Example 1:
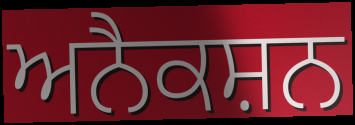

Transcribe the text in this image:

ਅਨੈਕਸ਼ਨ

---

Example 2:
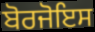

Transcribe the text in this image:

ਬੋਰਜੋਇਸ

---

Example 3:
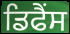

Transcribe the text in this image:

ਡਿਫੈਂਸ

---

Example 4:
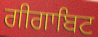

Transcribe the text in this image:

ਗੀਗਾਬਿਟ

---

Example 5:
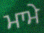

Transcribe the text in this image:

ਮਾਮੇ